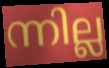
ന്നില്ല